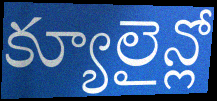
క్యూలైన్లో